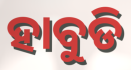
ହାବୁଡି